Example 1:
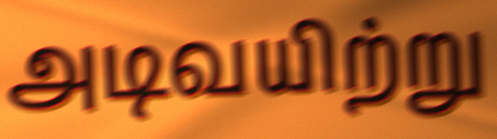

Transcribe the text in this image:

அடிவயிற்று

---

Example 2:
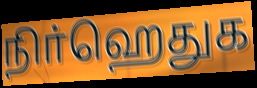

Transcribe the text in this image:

நிர்ஹெதுக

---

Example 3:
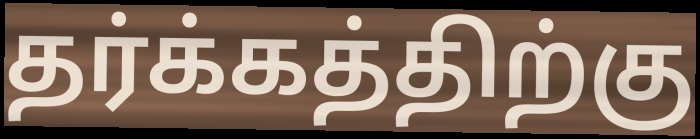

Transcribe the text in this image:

தர்க்கத்திற்கு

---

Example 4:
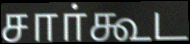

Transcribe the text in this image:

சார்கூட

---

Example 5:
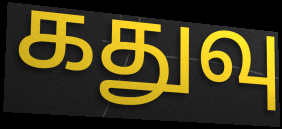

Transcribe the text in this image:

கதுவு